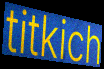
titkich